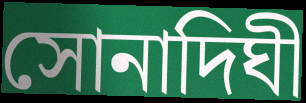
সোনাদিঘী